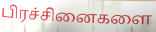
பிரச்சினைகளை